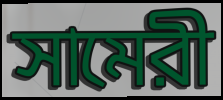
সামেরী